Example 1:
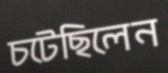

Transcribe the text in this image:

চটেছিলেন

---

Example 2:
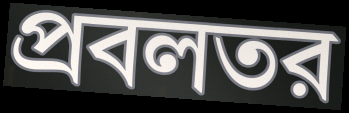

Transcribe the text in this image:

প্রবলতর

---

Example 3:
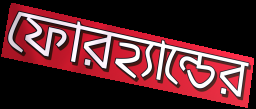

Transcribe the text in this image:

ফোরহ্যান্ডের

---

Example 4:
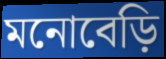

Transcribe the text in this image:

মনোবেড়ি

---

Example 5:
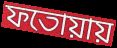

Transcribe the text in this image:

ফতোয়ায়